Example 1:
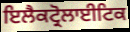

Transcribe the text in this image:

ਇਲੈਕਟ੍ਰੋਲਾਈਟਿਕ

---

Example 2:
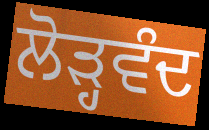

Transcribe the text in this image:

ਲੋੜ੍ਹਵੰਦ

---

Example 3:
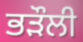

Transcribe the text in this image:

ਭੜੌਲੀ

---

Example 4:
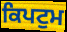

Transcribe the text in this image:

ਕਿਪਟੁਮ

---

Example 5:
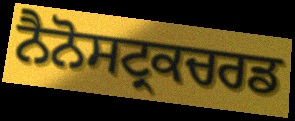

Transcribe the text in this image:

ਨੈਨੋਸਟ੍ਰਕਚਰਡ